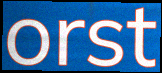
orst